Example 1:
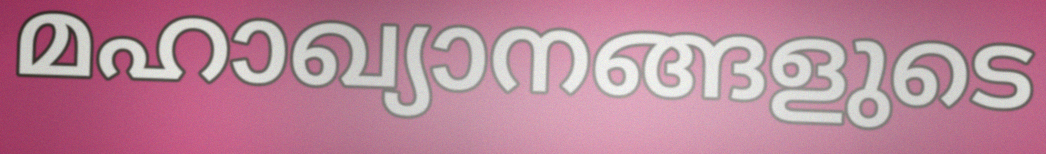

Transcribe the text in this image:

മഹാഖ്യാനങ്ങളുടെ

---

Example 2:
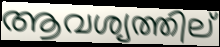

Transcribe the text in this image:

ആവശ്യത്തില്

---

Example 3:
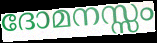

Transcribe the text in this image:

ദോമനസ്സം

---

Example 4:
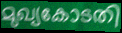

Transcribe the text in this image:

മുഖ്യകോടതി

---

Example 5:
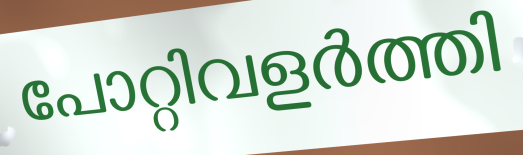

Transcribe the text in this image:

പോറ്റിവളർത്തി